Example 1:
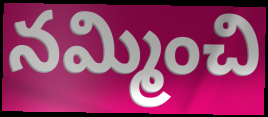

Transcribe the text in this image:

నమ్మించి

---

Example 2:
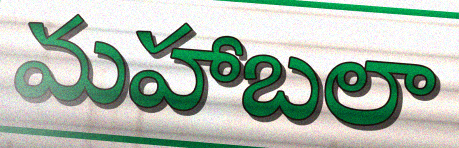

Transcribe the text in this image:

మహాబలా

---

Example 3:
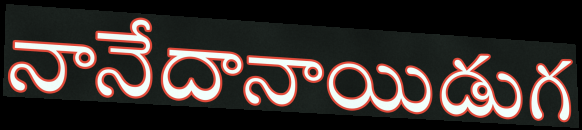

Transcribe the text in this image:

నానేదానాయిడుగ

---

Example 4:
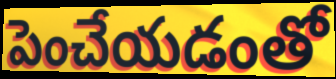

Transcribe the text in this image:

పెంచేయడంతో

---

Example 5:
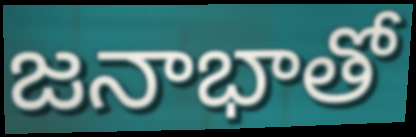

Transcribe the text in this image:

జనాభాతో